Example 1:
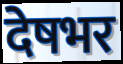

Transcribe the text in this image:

देषभर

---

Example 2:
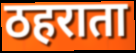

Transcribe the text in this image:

ठहराता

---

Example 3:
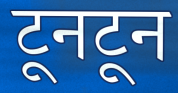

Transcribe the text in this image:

टूनटून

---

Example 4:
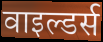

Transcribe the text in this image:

वाइल्डर्स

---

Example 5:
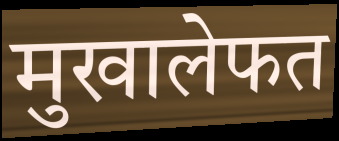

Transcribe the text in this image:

मुखालेफत